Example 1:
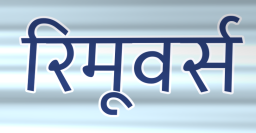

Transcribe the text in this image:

रिमूवर्स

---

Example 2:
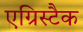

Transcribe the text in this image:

एग्रिस्टैक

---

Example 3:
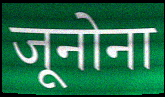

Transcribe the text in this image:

जूनोना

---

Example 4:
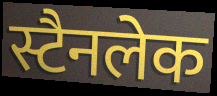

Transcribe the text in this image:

स्टैनलेक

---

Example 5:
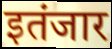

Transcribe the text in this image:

इतंजार